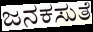
ಜನಕಸುತೆ